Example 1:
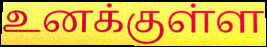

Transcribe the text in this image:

உனக்குள்ள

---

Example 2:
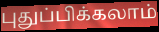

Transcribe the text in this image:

புதுப்பிக்கலாம்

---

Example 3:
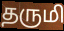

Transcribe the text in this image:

தருமி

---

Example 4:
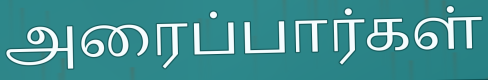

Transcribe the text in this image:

அரைப்பார்கள்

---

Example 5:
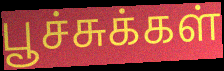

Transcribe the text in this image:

பூச்சுக்கள்